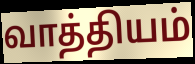
வாத்தியம்